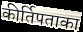
कीर्तिपताका